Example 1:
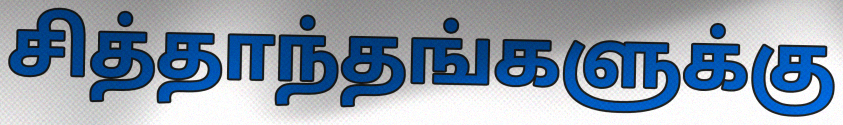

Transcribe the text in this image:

சித்தாந்தங்களுக்கு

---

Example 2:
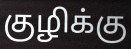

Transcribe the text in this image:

குழிக்கு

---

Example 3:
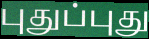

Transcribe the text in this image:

புதுப்புது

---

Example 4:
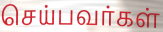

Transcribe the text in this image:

செய்பவர்கள்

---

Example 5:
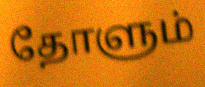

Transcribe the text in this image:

தோளும்